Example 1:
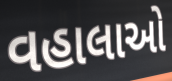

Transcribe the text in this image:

વહાલાઓ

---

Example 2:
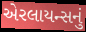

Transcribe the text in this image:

એરલાયન્સનું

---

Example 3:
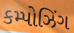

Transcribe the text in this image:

કમ્પોઝિંગ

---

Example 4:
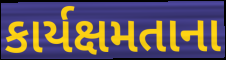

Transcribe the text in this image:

કાર્યક્ષમતાના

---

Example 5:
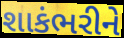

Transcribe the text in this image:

શાકંભરીને